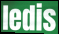
ledis